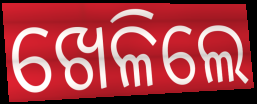
ଖେଳିଲେ